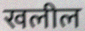
खलील